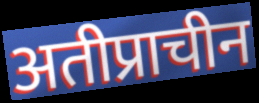
अतीप्राचीन